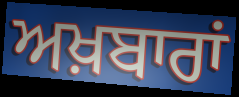
ਅਖ਼ਬਾਰਾਂ